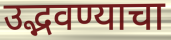
उद्भवण्याचा